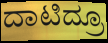
ದಾಟಿದ್ರೂ